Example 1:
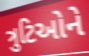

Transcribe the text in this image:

ત્રુટિઓને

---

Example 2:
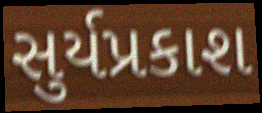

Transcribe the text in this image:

સુર્યપ્રકાશ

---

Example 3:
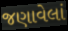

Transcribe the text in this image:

જણાવેલાં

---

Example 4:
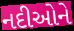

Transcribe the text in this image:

નદીઓને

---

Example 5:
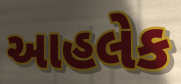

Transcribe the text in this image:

આહલેક